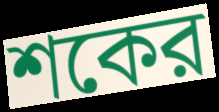
শকের